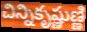
చిన్నికృష్ణుణ్ణి